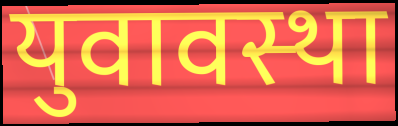
युवावस्था